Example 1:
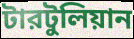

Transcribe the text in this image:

টারটুলিয়ান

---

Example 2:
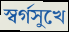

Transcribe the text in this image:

স্বর্গসুখে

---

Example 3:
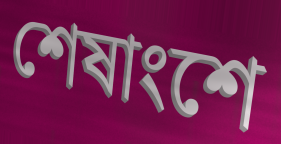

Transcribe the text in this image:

শেষাংশে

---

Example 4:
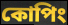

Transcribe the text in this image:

কোপিং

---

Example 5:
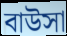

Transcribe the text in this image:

বাউসা